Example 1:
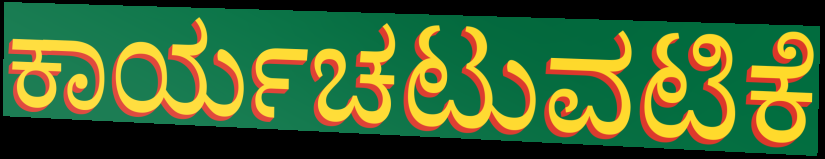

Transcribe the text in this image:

ಕಾರ್ಯಚಟುವಟಿಕೆ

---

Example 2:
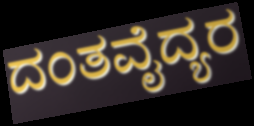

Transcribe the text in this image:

ದಂತವೈದ್ಯರ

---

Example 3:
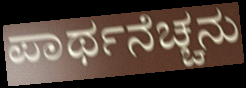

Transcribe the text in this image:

ಪಾರ್ಥನೆಚ್ಚನು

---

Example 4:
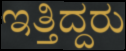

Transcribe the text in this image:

ಇತ್ತಿದ್ದರು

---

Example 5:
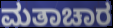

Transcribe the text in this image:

ಮತಾಚಾರ